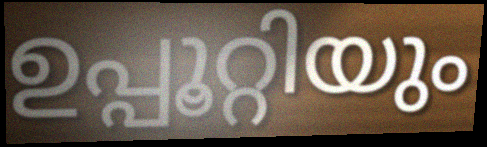
ഉപ്പൂറ്റിയും